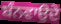
ਬੰਨਵਾਉਦੇ